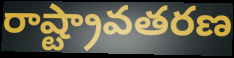
రాష్ట్రావతరణ